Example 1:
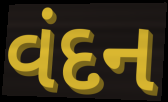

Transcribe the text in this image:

વંદન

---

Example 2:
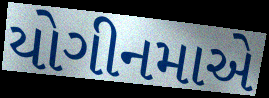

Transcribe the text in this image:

યોગીનમાએ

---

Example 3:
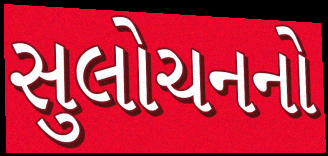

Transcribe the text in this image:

સુલોચનનો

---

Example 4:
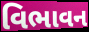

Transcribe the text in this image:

વિભાવન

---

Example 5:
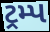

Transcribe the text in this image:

ટ્રમ્પ